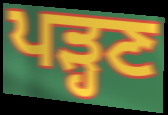
ਪੜ੍ਹਣ